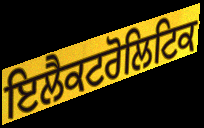
ਇਲੈਕਟਰੋਲਿਟਿਕ